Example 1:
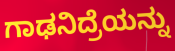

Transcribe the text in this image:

ಗಾಢನಿದ್ರೆಯನ್ನು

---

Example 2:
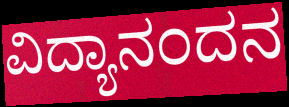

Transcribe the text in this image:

ವಿದ್ಯಾನಂದನ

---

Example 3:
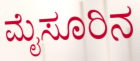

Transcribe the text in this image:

ಮೈಸೂರಿನ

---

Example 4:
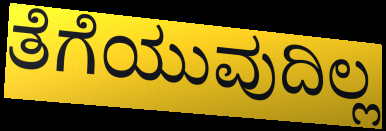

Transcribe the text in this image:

ತೆಗೆಯುವುದಿಲ್ಲ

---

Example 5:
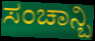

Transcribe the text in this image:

ಸಂಚಾನ್ಬಿ